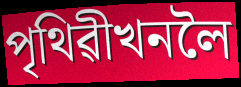
পৃথিৱীখনলৈ